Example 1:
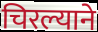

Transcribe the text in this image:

चिरल्याने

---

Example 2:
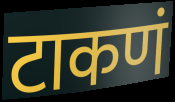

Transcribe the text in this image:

टाकणं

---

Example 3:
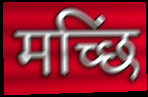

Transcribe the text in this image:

मच्छिं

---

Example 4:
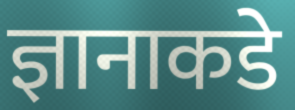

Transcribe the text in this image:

ज्ञानाकडे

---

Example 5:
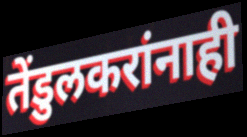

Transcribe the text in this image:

तेंडुलकरांनाही